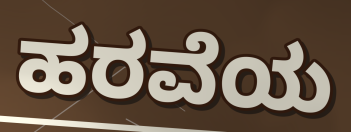
ಹರವೆಯ